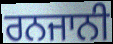
ਰਨਜਾਨੀ